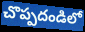
చొప్పదండిలో